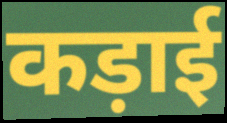
कड़ाई